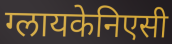
ग्लायकेनिएसी